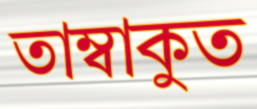
তাম্বাকুত